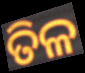
ତିଳ